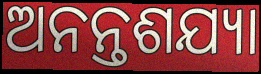
ଅନନ୍ତଶଯ୍ୟା